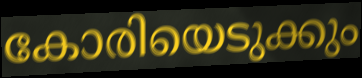
കോരിയെടുക്കും